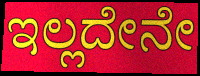
ಇಲ್ಲದೇನೇ